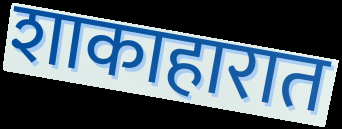
शाकाहारात